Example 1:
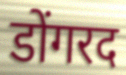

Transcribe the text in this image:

डोंगरद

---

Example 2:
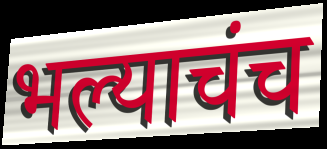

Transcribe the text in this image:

भल्याचंच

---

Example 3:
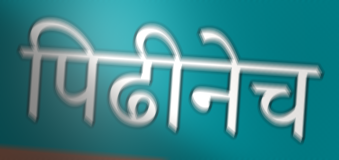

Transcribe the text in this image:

पिढीनेच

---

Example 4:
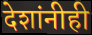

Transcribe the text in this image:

देशांनीही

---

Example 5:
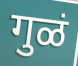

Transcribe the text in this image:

गुळं